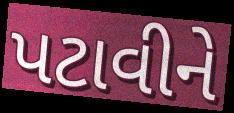
પટાવીને